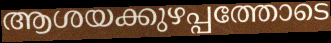
ആശയക്കുഴപ്പത്തോടെ